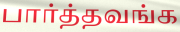
பார்த்தவங்க